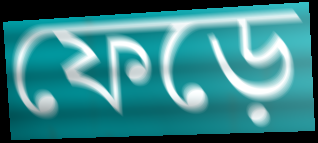
ফেড়ে